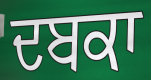
ਦਬਕਾ